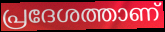
പ്രദേശത്താണ്